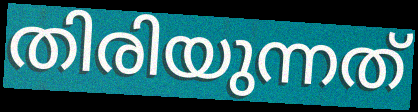
തിരിയുന്നത്